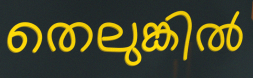
തെലുങ്കിൽ